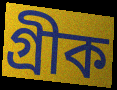
গ্ৰীক